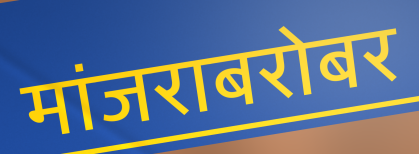
मांजराबरोबर